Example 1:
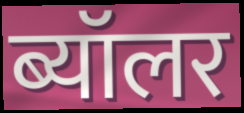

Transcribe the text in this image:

ब्यॉलर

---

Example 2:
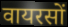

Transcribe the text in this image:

वायरसों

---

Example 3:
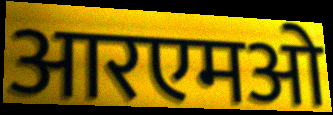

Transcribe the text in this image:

आरएमओ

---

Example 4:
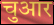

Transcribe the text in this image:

चुआर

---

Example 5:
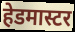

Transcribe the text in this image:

हेडमास्टर